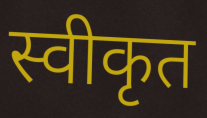
स्वीकृत